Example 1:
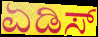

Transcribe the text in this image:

ಏಡಿಸ್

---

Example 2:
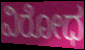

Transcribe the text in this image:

ವಿರೋಧ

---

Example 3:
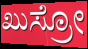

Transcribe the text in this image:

ಖುಸ್ರೋ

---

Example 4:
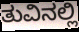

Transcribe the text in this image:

ತುವಿನಲ್ಲಿ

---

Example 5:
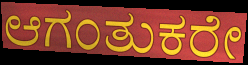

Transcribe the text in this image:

ಆಗಂತುಕರೇ